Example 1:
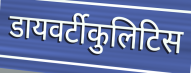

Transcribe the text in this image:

डायवर्टीकुलिटिस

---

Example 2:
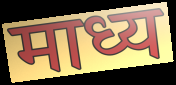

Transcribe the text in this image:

माध्य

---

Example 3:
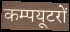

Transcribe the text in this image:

कम्पयूटरों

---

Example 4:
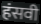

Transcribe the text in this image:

हंसवी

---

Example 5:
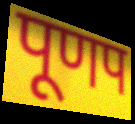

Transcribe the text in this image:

पूणप